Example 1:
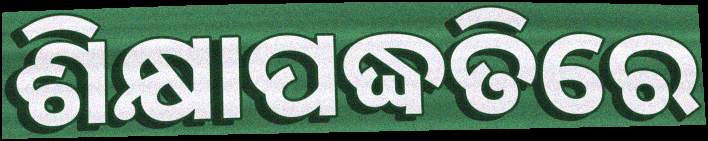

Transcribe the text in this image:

ଶିକ୍ଷାପଦ୍ଧତିରେ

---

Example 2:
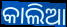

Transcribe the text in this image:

କାଲିଆ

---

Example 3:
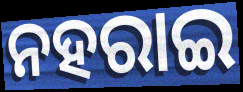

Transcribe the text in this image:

ନହରାଇ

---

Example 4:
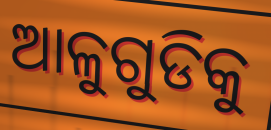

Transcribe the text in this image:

ଆଳୁଗୁଡିକୁ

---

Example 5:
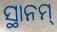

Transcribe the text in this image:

ସ୍ଥାନମ୍